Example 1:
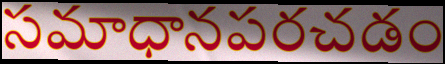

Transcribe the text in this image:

సమాధానపరచడం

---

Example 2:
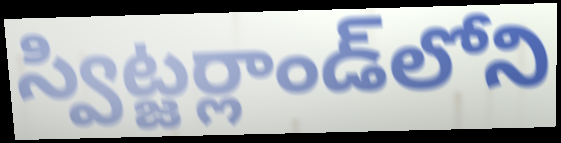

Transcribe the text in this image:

స్విట్జర్లాండ్‌లోని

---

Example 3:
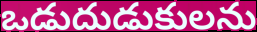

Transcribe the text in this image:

ఒడుదుడుకులను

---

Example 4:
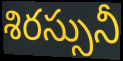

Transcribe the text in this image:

శిరస్సునీ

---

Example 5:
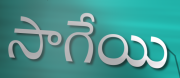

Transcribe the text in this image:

సాగేయి